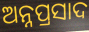
ଅନ୍ନପ୍ରସାଦ